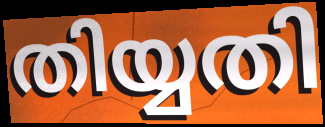
തിയ്യതി